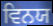
ਵਿਨਯ